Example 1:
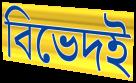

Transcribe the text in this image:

বিভেদই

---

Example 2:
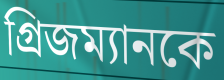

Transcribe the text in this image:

গ্রিজম্যানকে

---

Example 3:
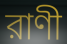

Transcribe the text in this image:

রাণী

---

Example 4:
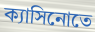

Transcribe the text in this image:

ক্যাসিনোতে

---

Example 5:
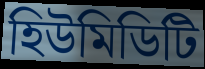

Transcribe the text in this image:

হিউমিডিটি